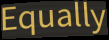
Equally